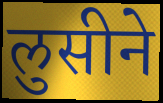
लुसीने